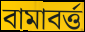
বামাবর্ত্ত